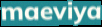
maeviya